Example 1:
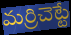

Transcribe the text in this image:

మర్రిచెట్టే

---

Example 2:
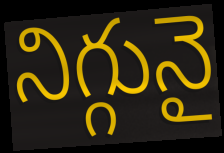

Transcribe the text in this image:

నిగ్గునై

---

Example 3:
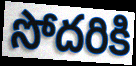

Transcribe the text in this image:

సోదరికి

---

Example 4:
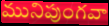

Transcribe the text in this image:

మునిపుంగవా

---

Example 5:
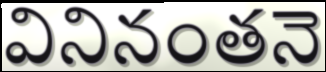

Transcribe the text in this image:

వినినంతనె